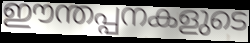
ഈന്തപ്പനകളുടെ